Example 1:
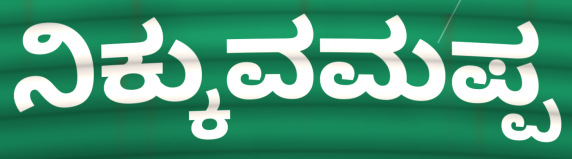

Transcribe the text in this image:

ನಿಕ್ಕುವಮಪ್ಪ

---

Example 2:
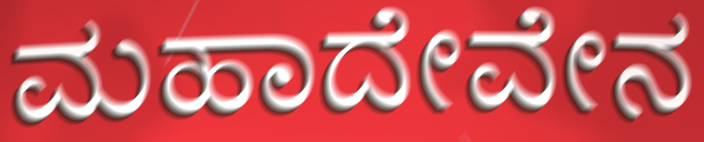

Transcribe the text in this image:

ಮಹಾದೇವೇನ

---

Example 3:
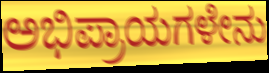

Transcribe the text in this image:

ಅಭಿಪ್ರಾಯಗಳೇನು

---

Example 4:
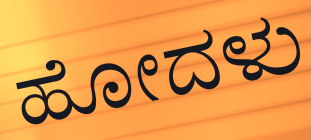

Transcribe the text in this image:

ಹೋದಳು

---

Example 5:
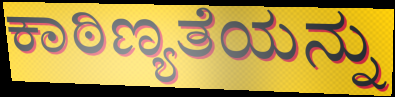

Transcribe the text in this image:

ಕಾಠಿಣ್ಯತೆಯನ್ನು